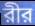
রীর